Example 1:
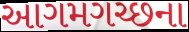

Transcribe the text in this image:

આગમગચ્છના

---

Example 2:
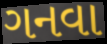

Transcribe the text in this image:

ગનવા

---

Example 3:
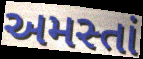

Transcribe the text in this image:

અમસ્તાં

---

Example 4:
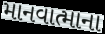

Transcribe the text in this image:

માનવાત્માના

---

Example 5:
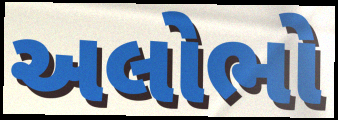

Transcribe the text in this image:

અલોભો